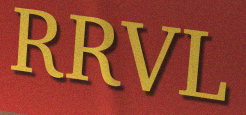
RRVL